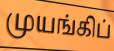
முயங்கிப்